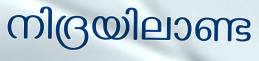
നിദ്രയിലാണ്ട